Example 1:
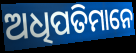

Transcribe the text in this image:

ଅଧିପତିମାନେ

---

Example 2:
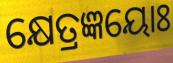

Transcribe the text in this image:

କ୍ଷେତ୍ରଜ୍ଞୟୋଃ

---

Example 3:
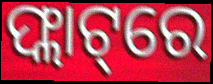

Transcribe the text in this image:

ଫ୍ଲାଟ୍‌ରେ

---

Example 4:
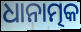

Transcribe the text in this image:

ଧାନାତ୍ମକ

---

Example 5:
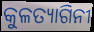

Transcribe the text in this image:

କୁଳତ୍ୟାଗିନୀ